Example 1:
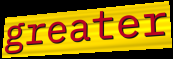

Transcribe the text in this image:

greater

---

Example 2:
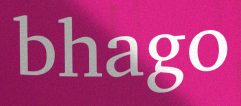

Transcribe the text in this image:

bhago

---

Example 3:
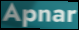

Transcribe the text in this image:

Apnar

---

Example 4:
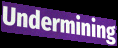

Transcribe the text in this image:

Undermining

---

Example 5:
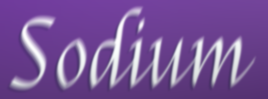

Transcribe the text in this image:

Sodium